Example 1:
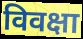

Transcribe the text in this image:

विवक्षा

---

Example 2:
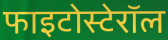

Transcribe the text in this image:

फाइटोस्टेरॉल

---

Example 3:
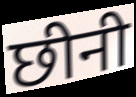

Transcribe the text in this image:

छीनी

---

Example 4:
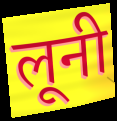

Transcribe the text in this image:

लूनी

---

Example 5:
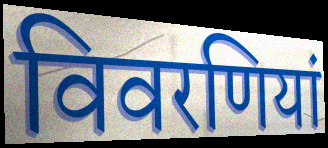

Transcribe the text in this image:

विवरणियां